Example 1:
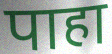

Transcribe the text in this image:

पाहा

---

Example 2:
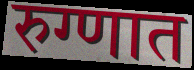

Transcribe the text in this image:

रुग्णात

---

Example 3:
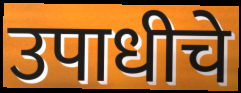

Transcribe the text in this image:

उपाधीचे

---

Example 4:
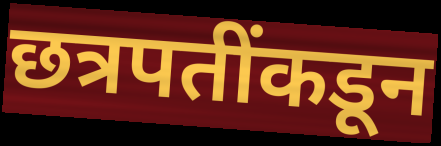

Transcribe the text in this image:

छत्रपतींकडून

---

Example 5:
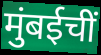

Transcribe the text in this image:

मुंबईचीं